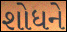
શોધને